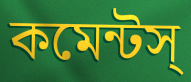
কমেন্টস্